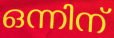
ഒന്നിന്